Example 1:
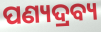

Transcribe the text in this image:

ପଣ୍ୟଦ୍ରବ୍ୟ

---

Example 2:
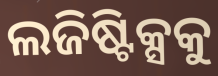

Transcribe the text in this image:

ଲଜିଷ୍ଟିକ୍ସକୁ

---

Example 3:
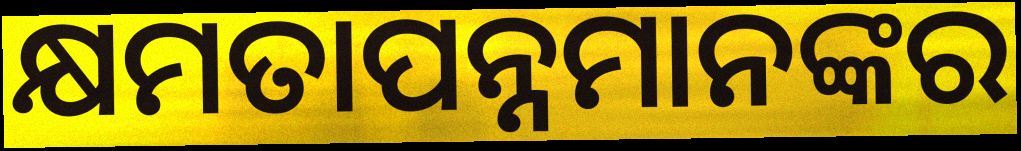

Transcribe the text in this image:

କ୍ଷମତାପନ୍ନମାନଙ୍କର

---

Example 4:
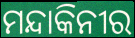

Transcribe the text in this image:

ମନ୍ଦାକିନୀର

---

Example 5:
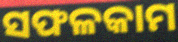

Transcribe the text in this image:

ସଫଳକାମ